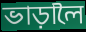
ভাড়ালৈ